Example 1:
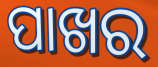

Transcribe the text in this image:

ପାଖର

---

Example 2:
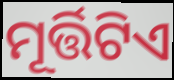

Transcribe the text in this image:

ମୂର୍ତ୍ତିଟିଏ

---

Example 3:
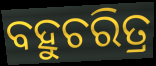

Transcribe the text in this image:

ବହୁଚରିତ୍ର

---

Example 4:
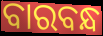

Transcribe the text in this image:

ବାରବନ୍ଧ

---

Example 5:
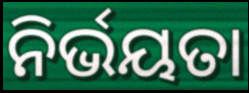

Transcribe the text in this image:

ନିର୍ଭୟତା